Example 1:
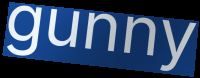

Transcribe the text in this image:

gunny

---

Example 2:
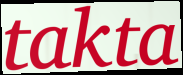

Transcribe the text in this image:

takta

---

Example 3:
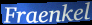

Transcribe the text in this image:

Fraenkel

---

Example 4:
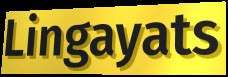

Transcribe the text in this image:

Lingayats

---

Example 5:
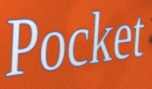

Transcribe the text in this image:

Pocket